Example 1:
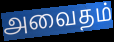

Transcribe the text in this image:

அவைதம்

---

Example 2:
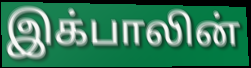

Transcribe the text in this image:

இக்பாலின்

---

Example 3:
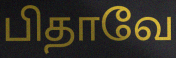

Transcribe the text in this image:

பிதாவே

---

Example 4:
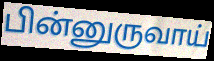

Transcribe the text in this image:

பின்னுருவாய்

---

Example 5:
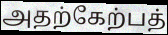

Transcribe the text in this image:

அதற்கேற்பத்